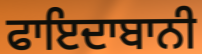
ਫਾਇਦਾਬਾਨੀ